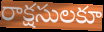
రాక్షసులకూ